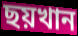
ছয়খান